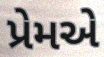
પ્રેમએ